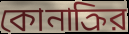
কোনাক্রির